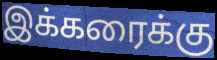
இக்கரைக்கு